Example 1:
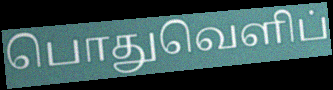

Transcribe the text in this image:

பொதுவெளிப்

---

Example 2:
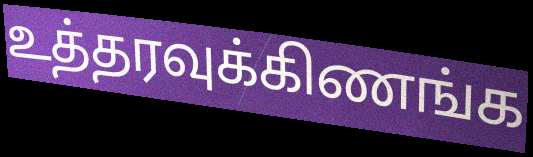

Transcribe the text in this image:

உத்தரவுக்கிணங்க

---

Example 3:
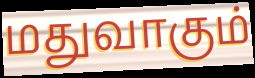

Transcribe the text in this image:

மதுவாகும்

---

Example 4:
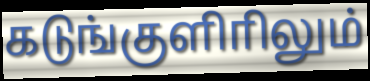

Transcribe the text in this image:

கடுங்குளிரிலும்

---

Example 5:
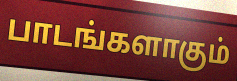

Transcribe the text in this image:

பாடங்களாகும்